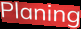
Planing